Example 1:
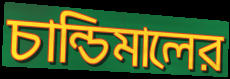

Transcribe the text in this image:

চান্ডিমালের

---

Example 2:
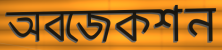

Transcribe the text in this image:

অবজেকশন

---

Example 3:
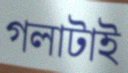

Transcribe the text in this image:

গলাটাই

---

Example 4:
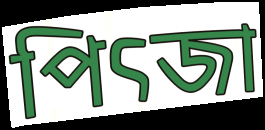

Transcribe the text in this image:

পিৎজা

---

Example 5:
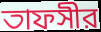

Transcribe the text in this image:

তাফসীর